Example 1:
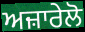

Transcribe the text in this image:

ਅਜ਼ਾਰੇਲੋ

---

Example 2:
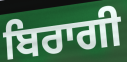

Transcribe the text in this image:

ਬਿਰਾਗੀ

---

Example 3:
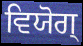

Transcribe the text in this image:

ਵਿਯੋਗ੍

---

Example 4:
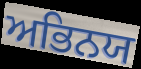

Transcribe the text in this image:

ਅਭਿਨਯ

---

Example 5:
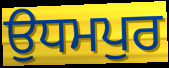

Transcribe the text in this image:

ਉਧਮਪੁਰ